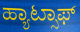
ಹ್ಯಾಟ್ಸಾಫ್